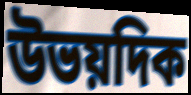
উভয়দিক